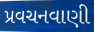
પ્રવચનવાણી